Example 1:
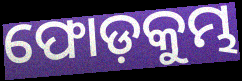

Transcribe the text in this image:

ଫୋଡ଼କୁମ୍ଭ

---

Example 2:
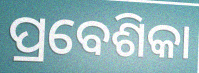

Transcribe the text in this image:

ପ୍ରବେଶିକା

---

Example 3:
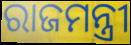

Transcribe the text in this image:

ରାଜମନ୍ତ୍ରୀ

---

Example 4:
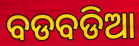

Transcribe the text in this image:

ବଡବଡିଆ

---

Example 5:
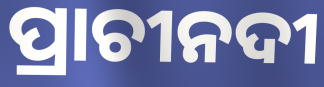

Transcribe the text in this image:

ପ୍ରାଚୀନଦୀ